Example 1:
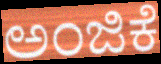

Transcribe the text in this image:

ಅಂಜಿಕೆ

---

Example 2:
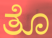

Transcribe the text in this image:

ತೊ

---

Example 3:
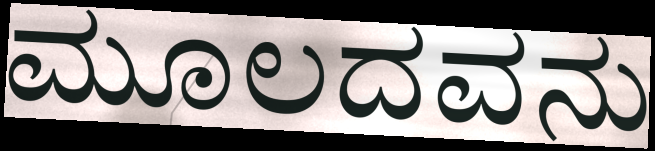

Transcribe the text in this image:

ಮೂಲದವನು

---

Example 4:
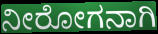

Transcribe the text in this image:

ನೀರೋಗನಾಗಿ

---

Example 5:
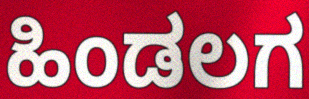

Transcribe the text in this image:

ಹಿಂಡಲಗ